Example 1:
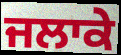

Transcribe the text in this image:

ਜਲਾਕੇ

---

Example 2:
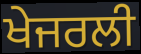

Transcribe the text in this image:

ਖੇਜਰਲੀ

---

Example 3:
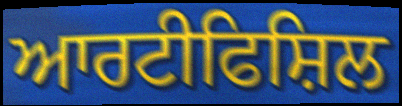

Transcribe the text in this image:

ਆਰਟੀਫਿਸ਼ਿਲ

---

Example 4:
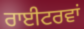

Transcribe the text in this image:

ਰਾਈਟਰਵਾਂ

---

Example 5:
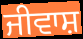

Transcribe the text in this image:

ਜੀਵਾਸ਼